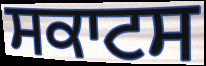
ਸਕਾਟਸ